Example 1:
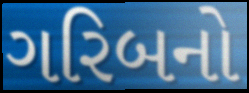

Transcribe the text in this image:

ગરિબનો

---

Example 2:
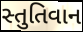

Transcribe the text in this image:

સ્તુતિવાન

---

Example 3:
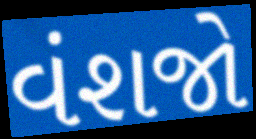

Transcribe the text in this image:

વંશજો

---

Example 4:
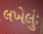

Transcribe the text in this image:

લખેલુંઃ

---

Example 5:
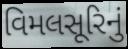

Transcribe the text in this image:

વિમલસૂરિનું